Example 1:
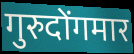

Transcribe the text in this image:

गुरुदोंगमार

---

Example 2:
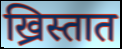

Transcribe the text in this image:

ख्रिस्तात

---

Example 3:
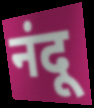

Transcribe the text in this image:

नंदू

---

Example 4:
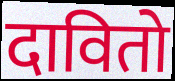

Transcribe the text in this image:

दावितो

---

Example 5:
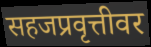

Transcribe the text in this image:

सहजप्रवृत्तीवर